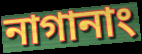
নাগানাং